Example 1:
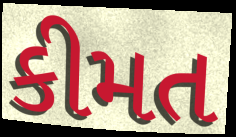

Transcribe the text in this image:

કીમત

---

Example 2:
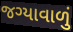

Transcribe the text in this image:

જગ્યાવાળું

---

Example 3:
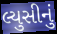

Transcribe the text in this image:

લ્યુસીનું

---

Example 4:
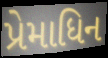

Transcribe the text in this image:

પ્રેમાધિન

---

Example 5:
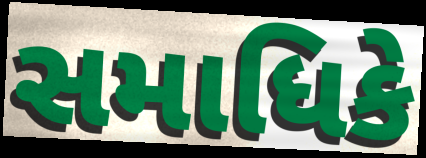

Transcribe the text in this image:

સમાધિકે